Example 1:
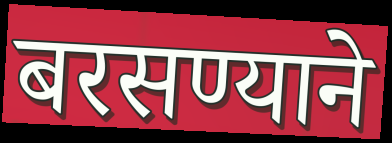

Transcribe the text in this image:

बरसण्याने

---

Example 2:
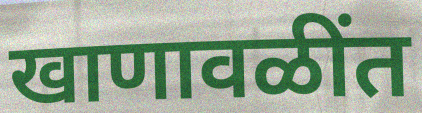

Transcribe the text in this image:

खाणावळींत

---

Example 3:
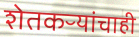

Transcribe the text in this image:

शेतकऱ्यांचाही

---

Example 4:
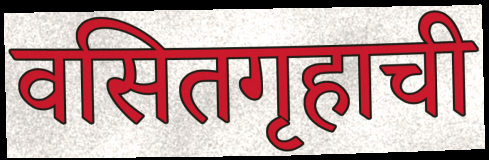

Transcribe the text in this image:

वसितगृहाची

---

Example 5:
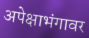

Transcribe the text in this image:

अपेक्षाभंगावर